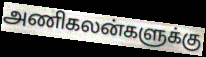
அணிகலன்களுக்கு